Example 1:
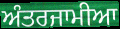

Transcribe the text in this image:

ਅੰਤਰਜਾਮੀਆ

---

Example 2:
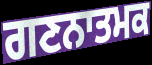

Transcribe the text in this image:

ਗਣਨਾਤਮਕ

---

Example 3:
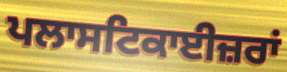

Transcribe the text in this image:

ਪਲਾਸਟਿਕਾਈਜ਼ਰਾਂ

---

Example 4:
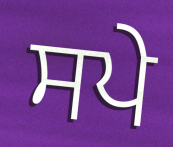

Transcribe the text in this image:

ਸਪੇ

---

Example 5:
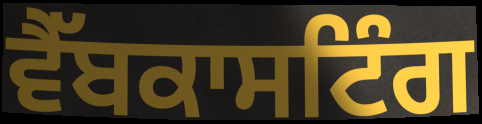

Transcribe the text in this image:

ਵੈੱਬਕਾਸਟਿੰਗ